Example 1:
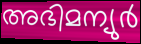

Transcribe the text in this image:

അഭിമന്യുർ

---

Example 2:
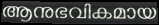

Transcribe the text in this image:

ആനുഭവികമായ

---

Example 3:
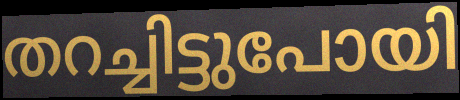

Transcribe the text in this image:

തറച്ചിട്ടുപോയി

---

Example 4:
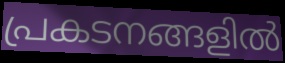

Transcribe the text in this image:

പ്രകടനങ്ങളിൽ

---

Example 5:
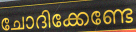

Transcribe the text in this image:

ചോദിക്കേണ്ടേ